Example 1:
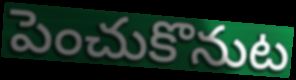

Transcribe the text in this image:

పెంచుకొనుట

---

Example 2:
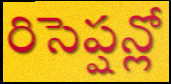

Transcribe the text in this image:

రిసెప్షన్లో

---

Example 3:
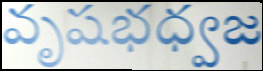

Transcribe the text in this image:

వృషభధ్వజ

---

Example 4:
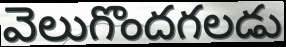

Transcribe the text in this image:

వెలుగొందగలడు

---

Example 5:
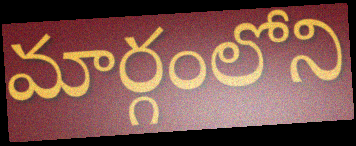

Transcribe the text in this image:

మార్గంలోని